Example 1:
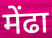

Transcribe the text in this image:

मेंढा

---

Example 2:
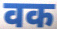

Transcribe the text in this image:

वक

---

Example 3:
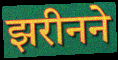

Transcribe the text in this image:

झरीनने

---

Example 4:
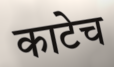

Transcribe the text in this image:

काटेच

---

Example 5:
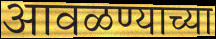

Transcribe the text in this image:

आवळण्याच्या